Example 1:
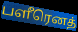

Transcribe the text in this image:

பளீரெனத்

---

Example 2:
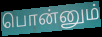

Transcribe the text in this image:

பொன்னும்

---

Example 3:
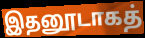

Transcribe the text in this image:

இதனூடாகத்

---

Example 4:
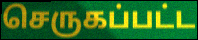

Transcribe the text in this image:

செருகப்பட்ட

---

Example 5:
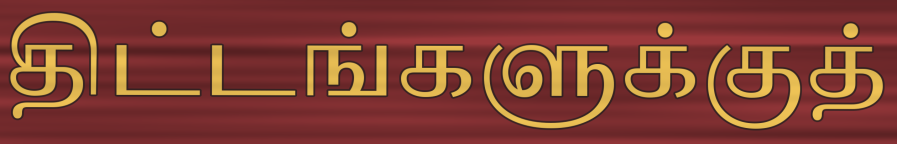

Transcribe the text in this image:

திட்டங்களுக்குத்